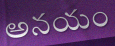
అనయం